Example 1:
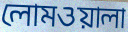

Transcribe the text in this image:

লোমওয়ালা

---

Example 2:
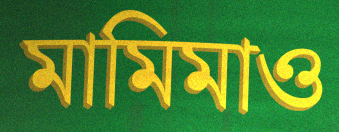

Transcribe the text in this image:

মামিমাও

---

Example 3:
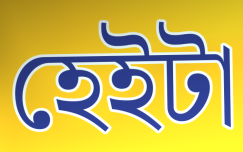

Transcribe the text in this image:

হেইটা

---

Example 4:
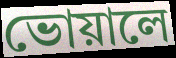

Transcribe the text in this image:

ভোয়ালে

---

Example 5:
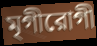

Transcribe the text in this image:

মৃগীরোগী